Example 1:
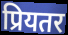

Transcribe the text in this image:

प्रियतर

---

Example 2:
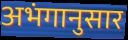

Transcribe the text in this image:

अभंगानुसार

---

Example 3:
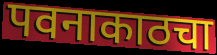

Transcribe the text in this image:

पवनाकाठचा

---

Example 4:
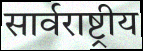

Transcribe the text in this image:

सार्वराष्ट्रीय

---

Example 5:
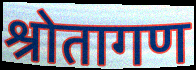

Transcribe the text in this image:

श्रोतागण